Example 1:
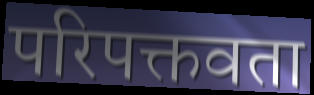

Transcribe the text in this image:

परिपक्तवता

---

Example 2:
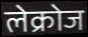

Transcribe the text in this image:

लेक्रोज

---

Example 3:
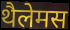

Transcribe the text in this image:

थैलेमस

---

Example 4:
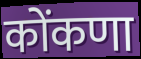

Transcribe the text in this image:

कोंकणा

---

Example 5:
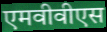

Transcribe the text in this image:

एमवीवीएस